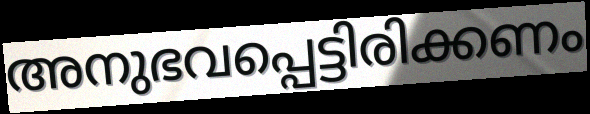
അനുഭവപ്പെട്ടിരിക്കണം